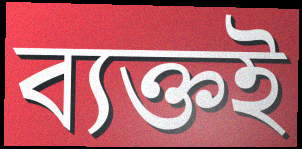
ব্যক্তই